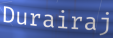
Durairaj